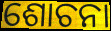
ଶୋଚନା